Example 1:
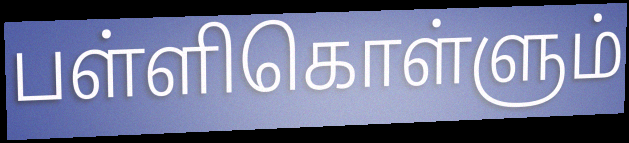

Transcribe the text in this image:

பள்ளிகொள்ளும்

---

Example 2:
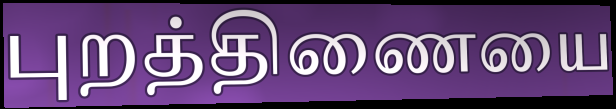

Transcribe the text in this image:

புறத்திணையை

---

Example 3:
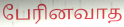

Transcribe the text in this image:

பேரினவாத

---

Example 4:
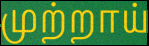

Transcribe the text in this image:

முற்றாய்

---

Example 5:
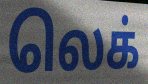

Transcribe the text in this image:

லெக்